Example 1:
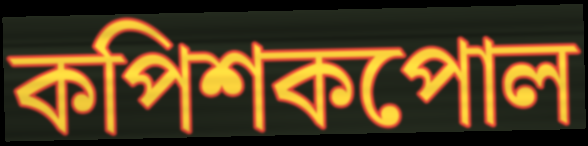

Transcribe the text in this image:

কপিশকপোল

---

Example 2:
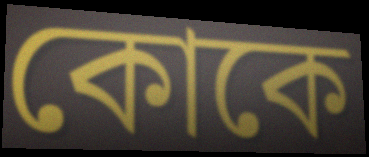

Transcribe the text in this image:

কোকে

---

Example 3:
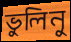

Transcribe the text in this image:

ভুলিনু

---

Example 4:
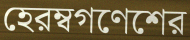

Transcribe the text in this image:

হেরম্বগণেশের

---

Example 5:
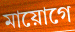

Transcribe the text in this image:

মায়োগে